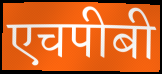
एचपीबी